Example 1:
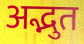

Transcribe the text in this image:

अद्भुत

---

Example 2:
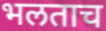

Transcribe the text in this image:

भलताच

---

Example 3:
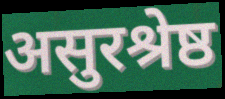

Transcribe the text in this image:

असुरश्रेष्ठ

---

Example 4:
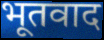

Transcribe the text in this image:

भूतवाद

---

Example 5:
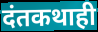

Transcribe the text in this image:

दंतकथाही